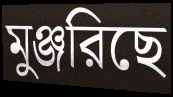
মুঞ্জরিছে